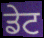
ਡੇਟ